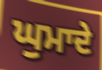
ਘੁਮਾਦੇ